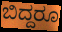
ಬಿದ್ದರೂ